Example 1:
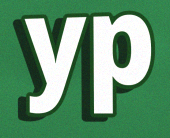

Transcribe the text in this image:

yp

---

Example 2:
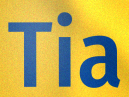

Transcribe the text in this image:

Tia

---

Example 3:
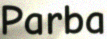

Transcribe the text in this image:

Parba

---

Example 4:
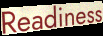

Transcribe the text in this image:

Readiness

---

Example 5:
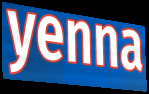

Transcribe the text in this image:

yenna